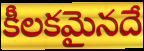
కీలకమైనదే